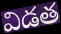
విడత